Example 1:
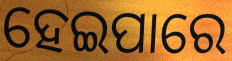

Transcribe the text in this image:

ହେଇପାରେ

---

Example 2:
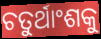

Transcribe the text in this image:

ଚତୁର୍ଥାଂଶକୁ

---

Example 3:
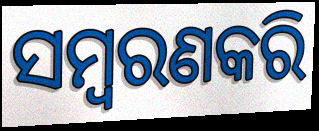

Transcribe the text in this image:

ସମ୍ବରଣକରି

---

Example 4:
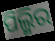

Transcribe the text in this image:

ପିଲ୍ମିର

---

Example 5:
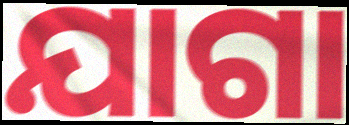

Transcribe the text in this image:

ଯାଗା